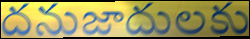
దనుజాదులకు